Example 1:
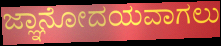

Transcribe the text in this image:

ಜ್ಞಾನೋದಯವಾಗಲು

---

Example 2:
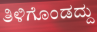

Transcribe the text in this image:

ತಿಳಿಗೊಂಡದ್ದು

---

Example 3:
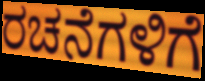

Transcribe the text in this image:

ರಚನೆಗಳಿಗೆ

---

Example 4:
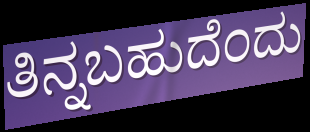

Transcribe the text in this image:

ತಿನ್ನಬಹುದೆಂದು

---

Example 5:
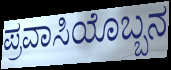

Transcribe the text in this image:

ಪ್ರವಾಸಿಯೊಬ್ಬನ